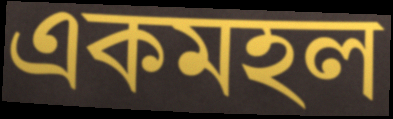
একমহল